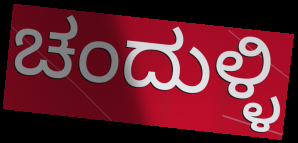
ಚಂದುಳ್ಳಿ